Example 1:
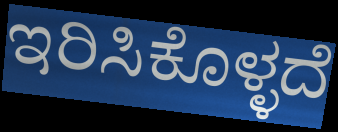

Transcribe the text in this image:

ಇರಿಸಿಕೊಳ್ಳದೆ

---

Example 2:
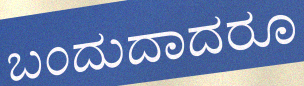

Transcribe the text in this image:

ಬಂದುದಾದರೂ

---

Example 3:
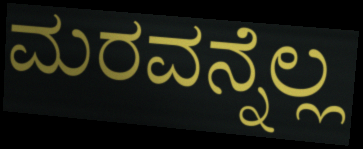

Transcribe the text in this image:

ಮರವನ್ನೆಲ್ಲ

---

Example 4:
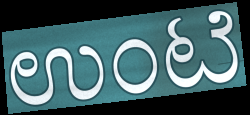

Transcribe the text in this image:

ಉಂಟೆ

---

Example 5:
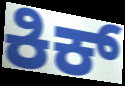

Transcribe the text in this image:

ಕಿಕ್